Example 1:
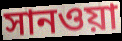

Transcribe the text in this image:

সানওয়া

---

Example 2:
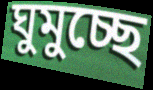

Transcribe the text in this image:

ঘুমুচ্ছে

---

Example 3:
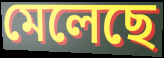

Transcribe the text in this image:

মেলেছে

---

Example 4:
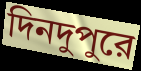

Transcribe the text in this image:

দিনদুপুরে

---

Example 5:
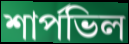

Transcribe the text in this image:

শার্পভিল